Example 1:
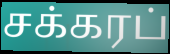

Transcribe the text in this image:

சக்கரப்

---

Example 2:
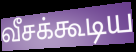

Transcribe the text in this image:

வீசக்கூடிய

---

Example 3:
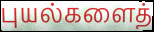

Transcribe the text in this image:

புயல்களைத்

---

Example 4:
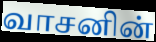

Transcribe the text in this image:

வாசனின்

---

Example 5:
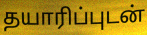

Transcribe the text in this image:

தயாரிப்புடன்